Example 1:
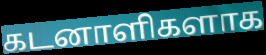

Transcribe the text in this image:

கடனாளிகளாக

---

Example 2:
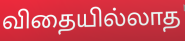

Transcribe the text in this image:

விதையில்லாத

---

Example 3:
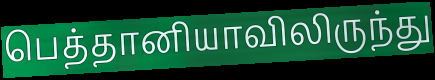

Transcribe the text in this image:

பெத்தானியாவிலிருந்து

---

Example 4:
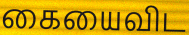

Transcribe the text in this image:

கையைவிட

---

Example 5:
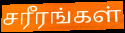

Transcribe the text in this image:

சரீரங்கள்